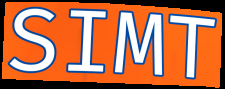
SIMT